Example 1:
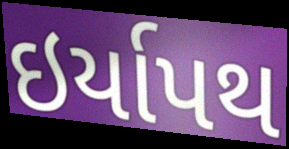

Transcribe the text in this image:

ઇર્યાપથ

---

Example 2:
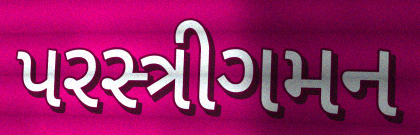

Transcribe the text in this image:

પરસ્ત્રીગમન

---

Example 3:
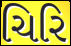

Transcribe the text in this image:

ચિરિ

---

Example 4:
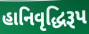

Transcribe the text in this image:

હાનિવૃદ્ધિરૂપ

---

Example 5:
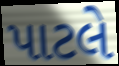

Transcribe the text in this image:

પાટલે